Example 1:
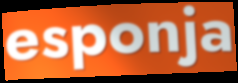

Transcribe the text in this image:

esponja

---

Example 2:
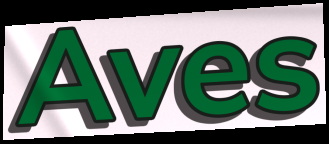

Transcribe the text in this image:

Aves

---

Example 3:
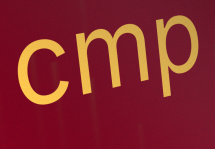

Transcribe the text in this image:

cmp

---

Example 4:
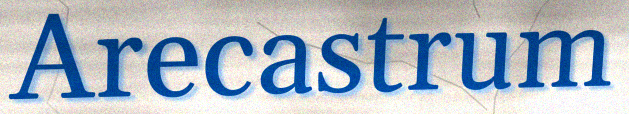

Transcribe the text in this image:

Arecastrum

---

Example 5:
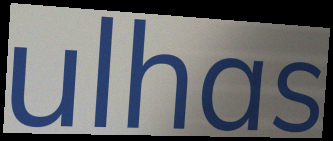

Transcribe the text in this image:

ulhas